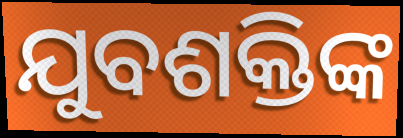
ଯୁବଶକ୍ତିଙ୍କ